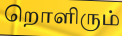
றொளிரும்